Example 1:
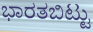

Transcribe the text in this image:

ಭಾರತಬಿಟ್ಟು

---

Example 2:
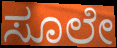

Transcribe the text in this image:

ಸೂಲೇ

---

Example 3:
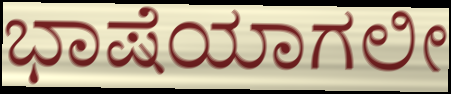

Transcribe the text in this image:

ಭಾಷೆಯಾಗಲೀ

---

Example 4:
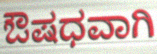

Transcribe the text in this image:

ಔಷಧವಾಗಿ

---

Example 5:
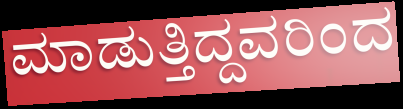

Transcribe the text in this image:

ಮಾಡುತ್ತಿದ್ದವರಿಂದ